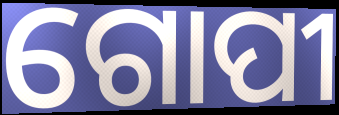
ଗୋପୀ